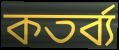
কতর্ব্য